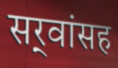
सर्वांसह